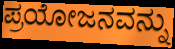
ಪ್ರಯೋಜನವನ್ನು